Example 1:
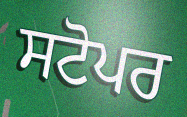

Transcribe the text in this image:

ਸਟੋਪਰ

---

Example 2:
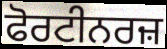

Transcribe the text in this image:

ਫੋਰਟੀਨਰਜ਼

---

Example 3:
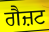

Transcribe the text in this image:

ਗੈਜ਼ਟ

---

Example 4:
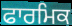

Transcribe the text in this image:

ਫਾਰਮਿਕ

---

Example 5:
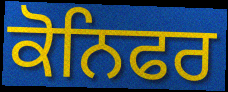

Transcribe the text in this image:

ਕੋਨਿਫਰ